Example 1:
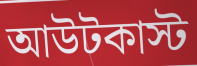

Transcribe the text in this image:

আউটকাস্ট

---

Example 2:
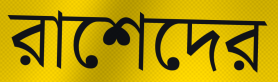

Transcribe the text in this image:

রাশেদের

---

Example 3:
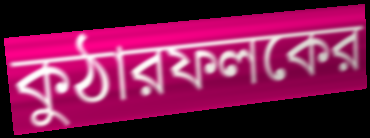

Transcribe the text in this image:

কুঠারফলকের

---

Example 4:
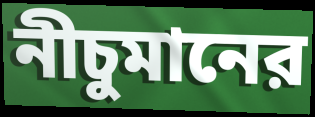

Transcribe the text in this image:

নীচুমানের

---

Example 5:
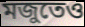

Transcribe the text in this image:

মজুতেও